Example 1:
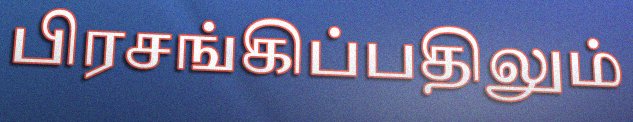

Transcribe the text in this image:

பிரசங்கிப்பதிலும்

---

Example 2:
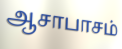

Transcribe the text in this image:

ஆசாபாசம்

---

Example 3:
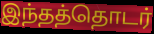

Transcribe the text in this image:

இந்தத்தொடர்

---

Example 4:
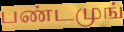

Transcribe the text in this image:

பண்டமுங்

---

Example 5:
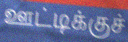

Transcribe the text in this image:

ஊட்டிக்குச்